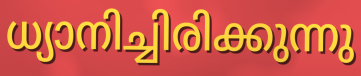
ധ്യാനിച്ചിരിക്കുന്നു